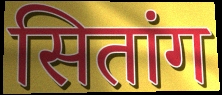
सितांग